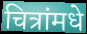
चित्रांमधे